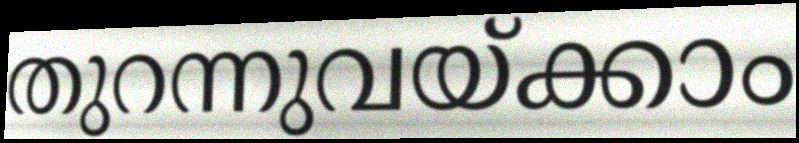
തുറന്നുവയ്ക്കാം